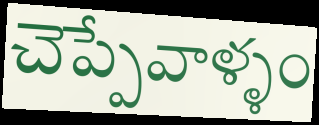
చెప్పేవాళ్ళం